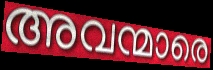
അവന്മാരെ